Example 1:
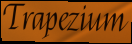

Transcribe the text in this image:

Trapezium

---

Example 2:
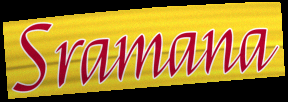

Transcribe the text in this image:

Sramana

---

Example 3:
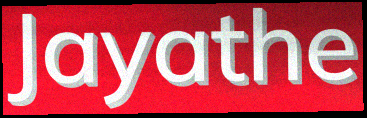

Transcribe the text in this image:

Jayathe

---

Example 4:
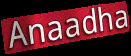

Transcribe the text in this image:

Anaadha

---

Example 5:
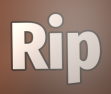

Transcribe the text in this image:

Rip